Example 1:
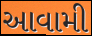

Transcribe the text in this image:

આવામી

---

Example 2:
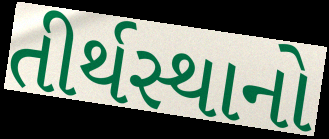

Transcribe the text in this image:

તીર્થસ્થાનો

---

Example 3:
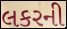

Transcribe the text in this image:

લકરની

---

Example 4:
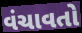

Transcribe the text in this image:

વંચાવતો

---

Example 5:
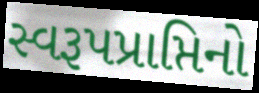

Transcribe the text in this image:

સ્વરૂપપ્રાપ્તિનો